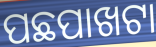
ପଛପାଖଟା